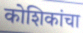
कोशिकांचा